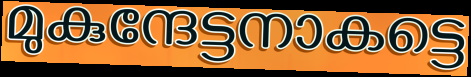
മുകുന്ദേട്ടനാകട്ടെ